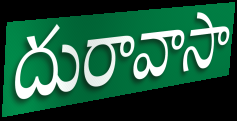
దురావాసా